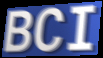
BCI